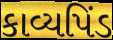
કાવ્યપિંડ